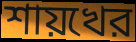
শায়খের